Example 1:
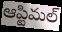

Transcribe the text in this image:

ఆప్టిమల్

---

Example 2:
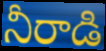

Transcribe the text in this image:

నీరాడి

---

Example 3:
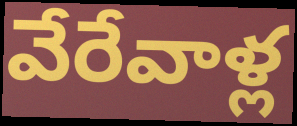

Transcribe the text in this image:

వేరేవాళ్ల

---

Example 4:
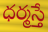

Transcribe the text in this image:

ధర్మస్తే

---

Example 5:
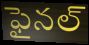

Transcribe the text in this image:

ఫైనల్